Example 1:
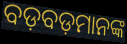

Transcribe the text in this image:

ବଡ଼ବଡ଼ମାନଙ୍କ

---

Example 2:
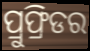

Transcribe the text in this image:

ପ୍ରୁଫ୍ରିଡର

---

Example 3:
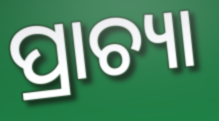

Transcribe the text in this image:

ପ୍ରାଚ୍ୟା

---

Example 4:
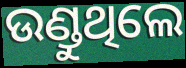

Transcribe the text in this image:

ଉଣ୍ଡୁଥିଲେ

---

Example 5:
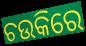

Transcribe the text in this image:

ଚଉକିରେ